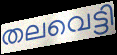
തലവെട്ടി